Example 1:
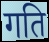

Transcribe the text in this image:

गति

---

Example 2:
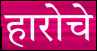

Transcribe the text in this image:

हारोचे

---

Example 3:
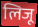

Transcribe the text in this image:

लिजू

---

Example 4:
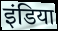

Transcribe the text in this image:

इंडिया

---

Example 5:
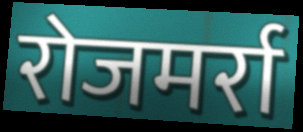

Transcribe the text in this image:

रोजमर्रा